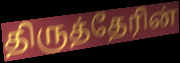
திருத்தேரின்